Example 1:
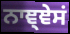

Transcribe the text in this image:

ਨਾਞ੍ਞੇਸਂ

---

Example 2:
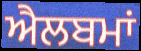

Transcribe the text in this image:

ਐਲਬਮਾਂ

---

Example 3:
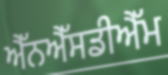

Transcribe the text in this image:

ਐੱਨਐੱਸਡੀਐੱਮ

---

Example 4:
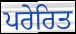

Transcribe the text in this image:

ਪਰੇਰਿਤ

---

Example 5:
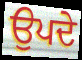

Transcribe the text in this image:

ਉਪਦੇ